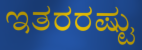
ಇತರರಷ್ಟು